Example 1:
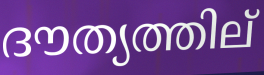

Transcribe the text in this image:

ദൗത്യത്തില്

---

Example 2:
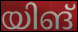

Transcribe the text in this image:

യിങ്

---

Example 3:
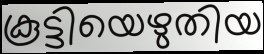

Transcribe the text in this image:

കൂട്ടിയെഴുതിയ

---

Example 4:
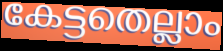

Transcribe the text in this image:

കേട്ടതെല്ലാം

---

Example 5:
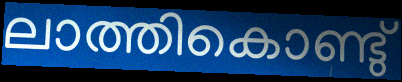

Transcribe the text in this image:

ലാത്തികൊണ്ടു്